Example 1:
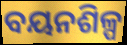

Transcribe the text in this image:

ବୟନଶିଳ୍ପ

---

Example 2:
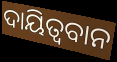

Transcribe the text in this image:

ଦାୟିତ୍ବବାନ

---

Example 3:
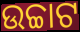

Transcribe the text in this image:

ଉଚ୍ଚାଟ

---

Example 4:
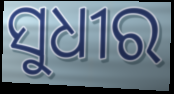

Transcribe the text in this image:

ସୁଧୀର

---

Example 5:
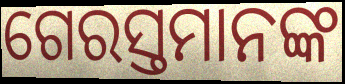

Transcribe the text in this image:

ଗେରସ୍ତମାନଙ୍କ